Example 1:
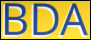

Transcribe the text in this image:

BDA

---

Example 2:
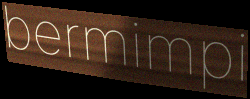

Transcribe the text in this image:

bermimpi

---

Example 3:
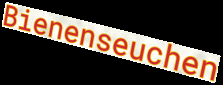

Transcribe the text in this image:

Bienenseuchen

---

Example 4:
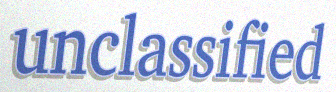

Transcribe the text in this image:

unclassified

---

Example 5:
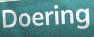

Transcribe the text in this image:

Doering